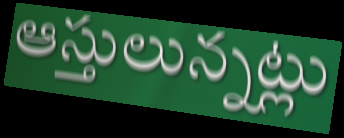
ఆస్తులున్నట్లు